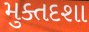
મુક્તદશા